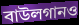
বাউলগানও